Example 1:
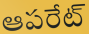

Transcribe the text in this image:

ఆపరేట్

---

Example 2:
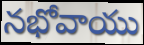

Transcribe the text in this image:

నభోవాయు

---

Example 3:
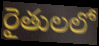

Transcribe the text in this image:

రైతులలో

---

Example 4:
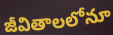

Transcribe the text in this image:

జీవితాలలోనూ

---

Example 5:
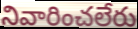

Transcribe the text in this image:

నివారించలేరు